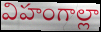
విహంగాల్లా